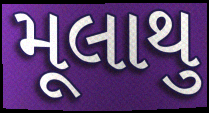
મૂલાથુ